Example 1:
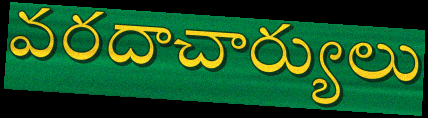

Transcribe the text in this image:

వరదాచార్యులు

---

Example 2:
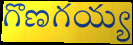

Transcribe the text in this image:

గొణగయ్య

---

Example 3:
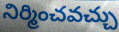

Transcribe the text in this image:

నిర్మించవచ్చు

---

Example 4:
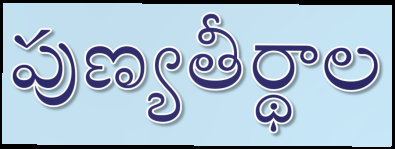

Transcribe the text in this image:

పుణ్యతీర్థాల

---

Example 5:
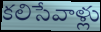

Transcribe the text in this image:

కలిసేవాళ్లు